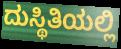
ದುಸ್ಥಿತಿಯಲ್ಲಿ